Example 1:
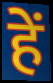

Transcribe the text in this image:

हें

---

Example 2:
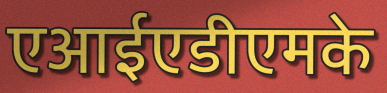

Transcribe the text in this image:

एआईएडीएमके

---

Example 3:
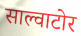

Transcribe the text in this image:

साल्वाटोर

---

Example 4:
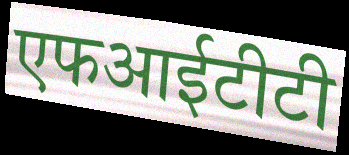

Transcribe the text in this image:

एफआईटीटी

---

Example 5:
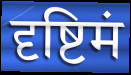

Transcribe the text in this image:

दृष्टिमं